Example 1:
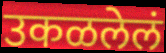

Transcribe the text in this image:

उकळलेलं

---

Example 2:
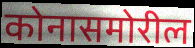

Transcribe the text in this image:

कोनासमोरील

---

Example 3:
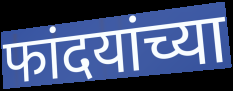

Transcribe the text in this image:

फांदयांच्या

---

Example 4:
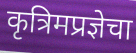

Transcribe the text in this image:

कृत्रिमप्रज्ञेचा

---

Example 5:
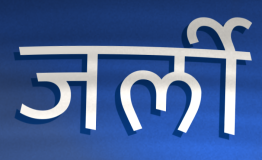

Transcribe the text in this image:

जर्ली